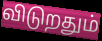
விடுறதும்